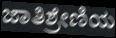
ಜಾತಿಶ್ರೇಣಿಯ